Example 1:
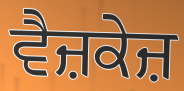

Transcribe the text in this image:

ਵੈਜ਼ਕੇਜ਼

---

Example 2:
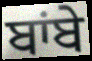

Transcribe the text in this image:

ਬਾਂਬੇ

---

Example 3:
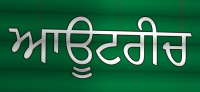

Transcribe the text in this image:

ਆਊਟਰੀਚ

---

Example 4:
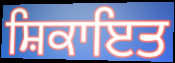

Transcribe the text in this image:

ਸ਼ਿਕਾਇਤ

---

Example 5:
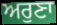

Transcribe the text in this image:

ਅਰੁਣਾ